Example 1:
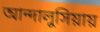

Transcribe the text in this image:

আন্দালুসিয়ায়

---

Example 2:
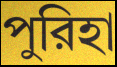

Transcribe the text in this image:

পুরিহা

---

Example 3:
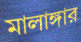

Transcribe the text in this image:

মালাঙ্গার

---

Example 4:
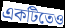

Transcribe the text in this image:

একটিতেও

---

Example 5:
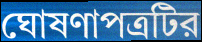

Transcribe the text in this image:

ঘোষণাপত্রটির